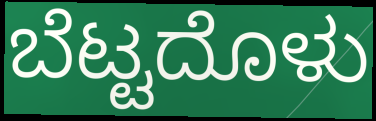
ಬೆಟ್ಟದೊಳು